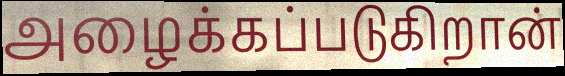
அழைக்கப்படுகிறான்